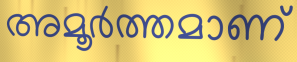
അമൂർത്തമാണ്